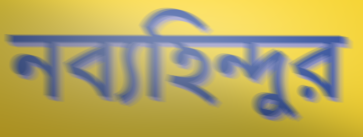
নব্যহিন্দুর